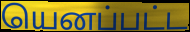
யெனப்பட்ட